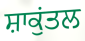
ਸ਼ਾਕੁਂਤਲ